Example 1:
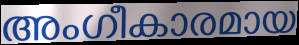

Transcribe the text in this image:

അംഗീകാരമായ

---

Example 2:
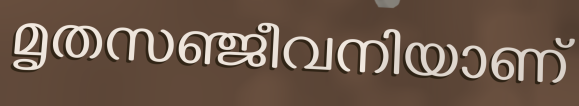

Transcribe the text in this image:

മൃതസഞ്ജീവനിയാണ്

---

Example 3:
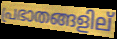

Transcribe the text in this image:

പ്രഭാതങ്ങളില്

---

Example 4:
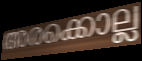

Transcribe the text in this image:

അരക്കൊല്ല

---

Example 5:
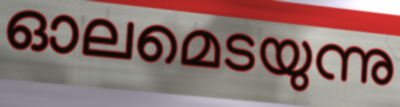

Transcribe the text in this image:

ഓലമെടയുന്നു